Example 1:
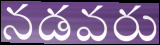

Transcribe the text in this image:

నడవరు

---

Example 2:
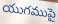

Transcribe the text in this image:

యుగముపై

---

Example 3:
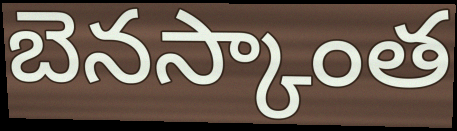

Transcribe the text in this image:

బెనస్కాంత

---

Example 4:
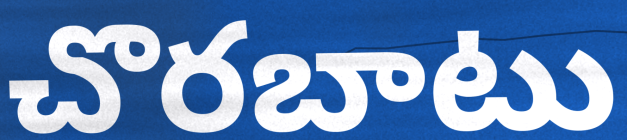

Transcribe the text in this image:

చొరబాటు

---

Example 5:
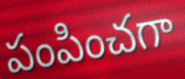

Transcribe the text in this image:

పంపించగా